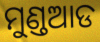
ମୁଣ୍ଡଆଡ